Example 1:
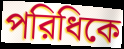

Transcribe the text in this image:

পরিধিকে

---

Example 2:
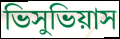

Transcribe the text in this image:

ভিসুভিয়াস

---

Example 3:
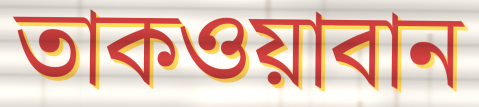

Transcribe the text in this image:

তাকওয়াবান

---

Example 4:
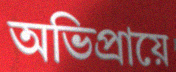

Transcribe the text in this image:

অভিপ্রায়ে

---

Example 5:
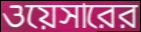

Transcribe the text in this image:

ওয়েসারের